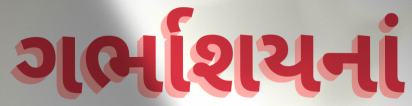
ગર્ભાશયનાં